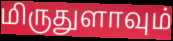
மிருதுளாவும்